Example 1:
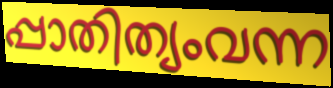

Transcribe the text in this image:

പ്പാതിത്യംവന്ന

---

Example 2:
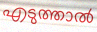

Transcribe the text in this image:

എടുത്താൽ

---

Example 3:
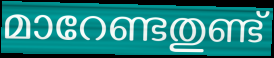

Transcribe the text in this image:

മാറേണ്ടതുണ്ട്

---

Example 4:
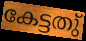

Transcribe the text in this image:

കേട്ടതു്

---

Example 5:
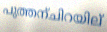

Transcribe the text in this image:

പുത്തന്ചിറയില്